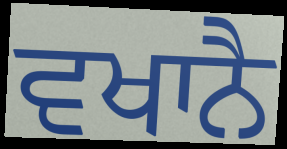
ਵਖਾਨੈ